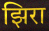
झिरा